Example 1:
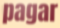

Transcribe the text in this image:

pagar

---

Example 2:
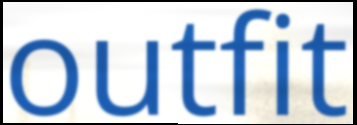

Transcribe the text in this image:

outfit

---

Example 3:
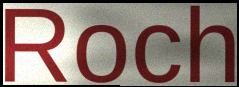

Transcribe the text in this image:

Roch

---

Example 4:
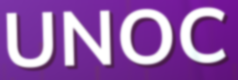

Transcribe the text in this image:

UNOC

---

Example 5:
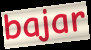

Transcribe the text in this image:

bajar